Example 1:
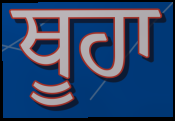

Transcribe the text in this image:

ਥੂਹਾ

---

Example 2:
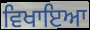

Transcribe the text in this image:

ਵਿਖਾਇਆ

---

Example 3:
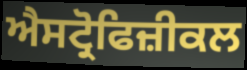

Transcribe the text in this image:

ਐਸਟ੍ਰੋਫਿਜ਼ੀਕਲ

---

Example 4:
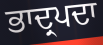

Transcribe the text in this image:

ਭਾਦ੍ਰਪਦਾ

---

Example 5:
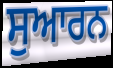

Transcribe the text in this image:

ਸੁਆਰਨ